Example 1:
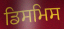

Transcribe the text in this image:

ਡਿਸਮਿਸ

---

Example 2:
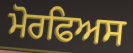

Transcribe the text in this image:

ਮੋਰਫਿਅਸ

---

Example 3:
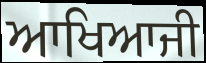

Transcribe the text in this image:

ਆਖਿਆਜੀ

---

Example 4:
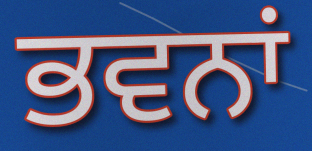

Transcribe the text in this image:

ਭਵਨਾਂ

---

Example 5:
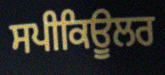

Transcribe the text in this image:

ਸਪੀਕਿਊਲਰ